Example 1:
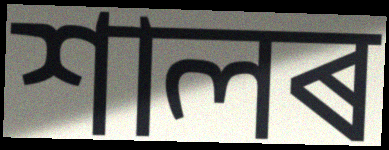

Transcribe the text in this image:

শালৰ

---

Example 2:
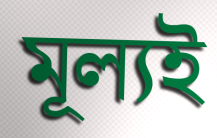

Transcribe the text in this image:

মূল্যই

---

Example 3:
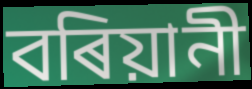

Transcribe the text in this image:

বৰিয়ানী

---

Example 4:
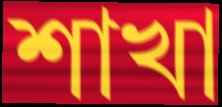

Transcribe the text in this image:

শাখা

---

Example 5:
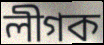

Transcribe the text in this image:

লীগক